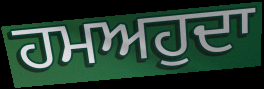
ਹਮਅਹੁਦਾ